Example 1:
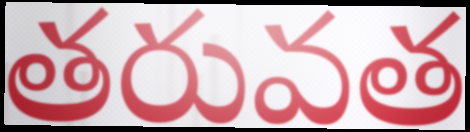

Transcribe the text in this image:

తరువత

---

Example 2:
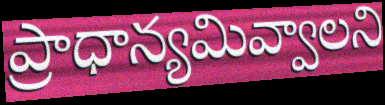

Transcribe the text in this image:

ప్రాధాన్యమివ్వాలని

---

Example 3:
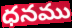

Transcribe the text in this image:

ధనము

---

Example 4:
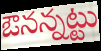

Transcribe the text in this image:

ఔనన్నట్టు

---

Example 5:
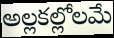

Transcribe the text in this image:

అల్లకల్లోలమే